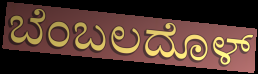
ಬೆಂಬಲದೊಳ್